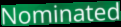
Nominated